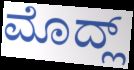
ಮೊದ್ಲ್